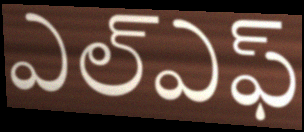
ఎల్ఎఫ్